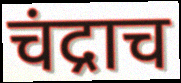
चंद्राच